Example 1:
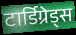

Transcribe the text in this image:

टार्डिग्रेड्स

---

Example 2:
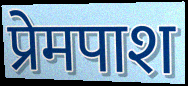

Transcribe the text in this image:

प्रेमपाश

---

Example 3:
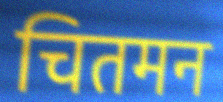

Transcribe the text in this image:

चितमन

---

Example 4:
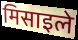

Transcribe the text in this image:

मिसाइले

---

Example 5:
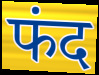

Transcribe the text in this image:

फंद